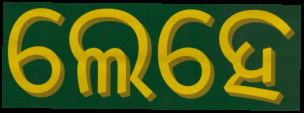
ଲେହେ